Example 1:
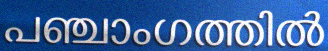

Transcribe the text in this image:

പഞ്ചാംഗത്തിൽ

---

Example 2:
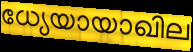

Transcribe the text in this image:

ധ്യേയായാഖില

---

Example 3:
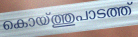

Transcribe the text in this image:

കൊയ്ത്തുപാടത്ത്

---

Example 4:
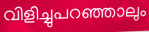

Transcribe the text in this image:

വിളിച്ചുപറഞ്ഞാലും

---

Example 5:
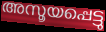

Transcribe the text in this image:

അസൂയപ്പെട്ടു